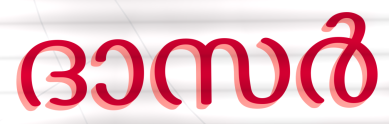
ദാസർ